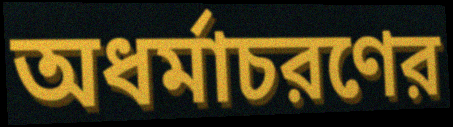
অধর্মাচরণের